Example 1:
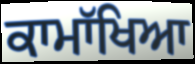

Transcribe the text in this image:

ਕਾਮਾੱਖਿਆ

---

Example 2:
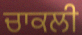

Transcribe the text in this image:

ਚਾਕਲੀ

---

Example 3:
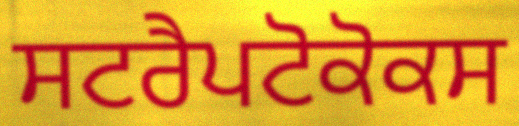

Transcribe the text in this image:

ਸਟਰੈਪਟੋਕੋਕਸ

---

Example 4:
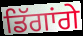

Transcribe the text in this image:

ਡਿੱਗਾਂਗੇ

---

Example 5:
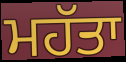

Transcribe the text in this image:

ਮਹੱਤਾ